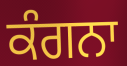
ਕੰਗਨਾ